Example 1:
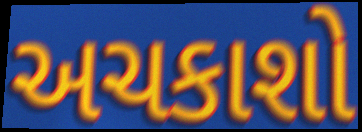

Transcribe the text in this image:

અચકાશો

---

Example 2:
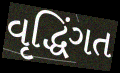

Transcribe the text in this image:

વૃદ્ધિંગત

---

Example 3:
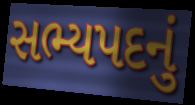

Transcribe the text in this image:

સભ્યપદનું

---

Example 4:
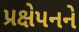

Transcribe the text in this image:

પ્રક્ષેપનને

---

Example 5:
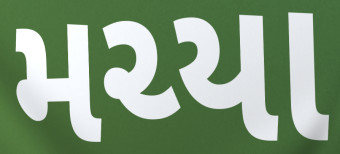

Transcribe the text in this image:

મચ્યા